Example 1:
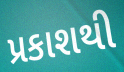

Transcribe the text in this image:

પ્રકાશથી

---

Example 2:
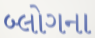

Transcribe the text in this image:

બ્લોગના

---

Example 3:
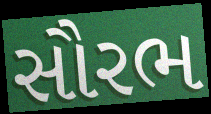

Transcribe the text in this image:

સૌરભ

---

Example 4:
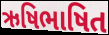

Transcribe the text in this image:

ઋષિભાષિત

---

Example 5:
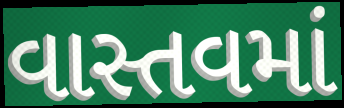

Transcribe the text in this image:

વાસ્તવમાં